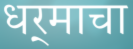
धर्माचा